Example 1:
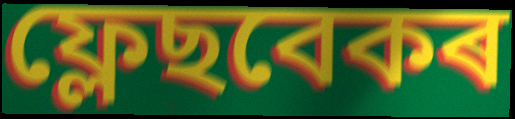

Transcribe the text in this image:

ফ্লেছবেকৰ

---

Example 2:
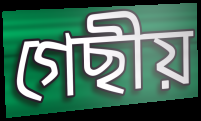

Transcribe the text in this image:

গেছীয়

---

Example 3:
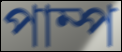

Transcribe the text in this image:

পাম্প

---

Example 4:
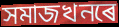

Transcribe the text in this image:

সমাজখনৰে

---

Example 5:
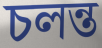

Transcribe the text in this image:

চলন্ত